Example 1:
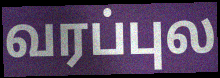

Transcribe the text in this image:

வரப்புல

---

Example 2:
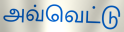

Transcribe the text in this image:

அவ்வெட்டு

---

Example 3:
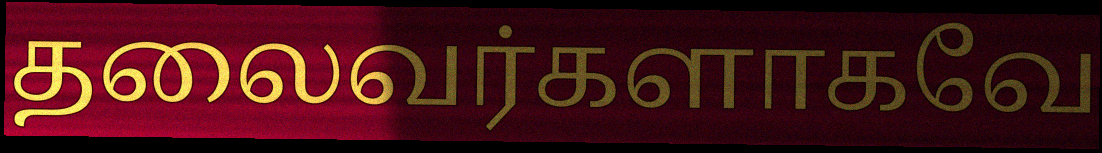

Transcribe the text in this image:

தலைவர்களாகவே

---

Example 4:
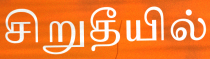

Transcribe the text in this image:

சிறுதீயில்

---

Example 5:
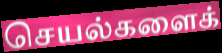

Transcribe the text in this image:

செயல்களைக்